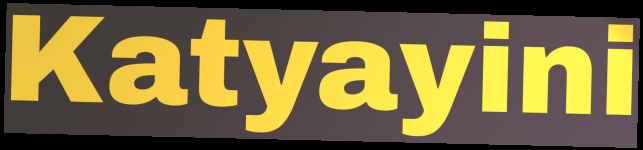
Katyayini